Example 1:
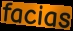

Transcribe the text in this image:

facias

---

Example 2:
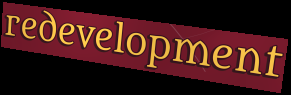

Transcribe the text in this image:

redevelopment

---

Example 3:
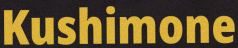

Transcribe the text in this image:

Kushimone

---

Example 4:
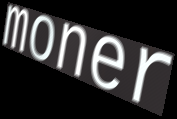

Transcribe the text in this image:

moner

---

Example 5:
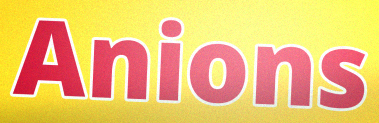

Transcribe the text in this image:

Anions